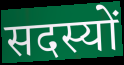
सदस्यों